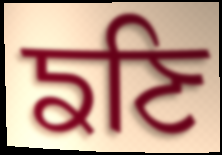
ਙਣਿ